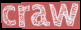
craw